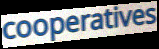
cooperatives